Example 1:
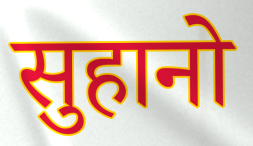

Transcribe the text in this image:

सुहानो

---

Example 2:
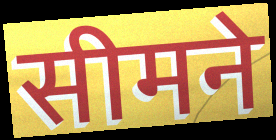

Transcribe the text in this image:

सीमने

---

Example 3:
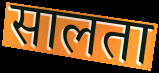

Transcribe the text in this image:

सालता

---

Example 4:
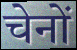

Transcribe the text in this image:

चेनों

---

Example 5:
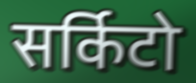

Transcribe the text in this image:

सर्किटो